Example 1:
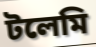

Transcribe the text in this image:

টলেমি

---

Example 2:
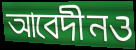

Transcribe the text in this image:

আবেদীনও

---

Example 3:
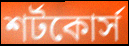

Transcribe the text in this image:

শর্টকোর্স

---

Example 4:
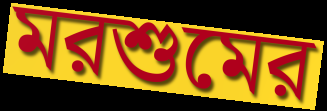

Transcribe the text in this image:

মরশুমের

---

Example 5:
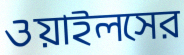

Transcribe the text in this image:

ওয়াইলসের